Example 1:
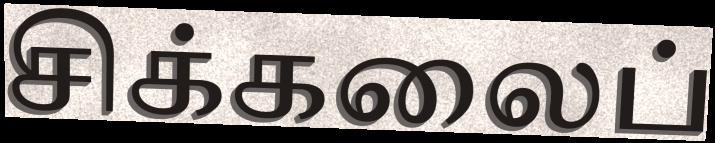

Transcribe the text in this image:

சிக்கலைப்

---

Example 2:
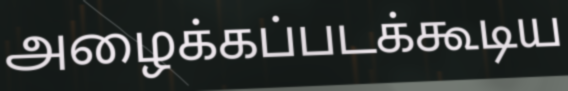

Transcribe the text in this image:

அழைக்கப்படக்கூடிய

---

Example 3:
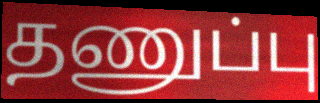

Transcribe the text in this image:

தணுப்பு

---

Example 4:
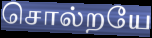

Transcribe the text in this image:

சொல்றயே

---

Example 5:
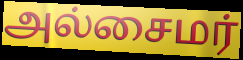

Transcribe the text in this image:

அல்சைமர்